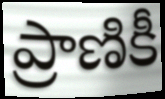
ప్రాణికీ